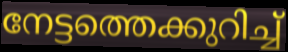
നേട്ടത്തെക്കുറിച്ച്